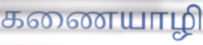
கணையாழி